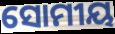
ସୋମୀୟ